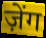
ज़ेंग